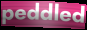
peddled